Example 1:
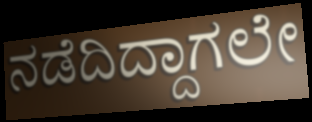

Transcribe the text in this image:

ನಡೆದಿದ್ದಾಗಲೇ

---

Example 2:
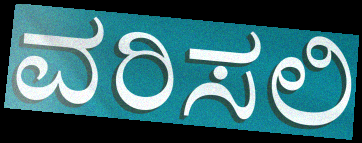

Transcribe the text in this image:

ವರಿಸಲಿ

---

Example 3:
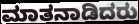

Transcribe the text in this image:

ಮಾತನಾಡಿದರು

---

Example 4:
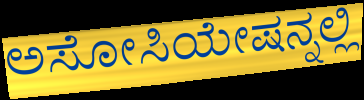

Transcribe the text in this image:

ಅಸೋಸಿಯೇಷನ್ನಲ್ಲಿ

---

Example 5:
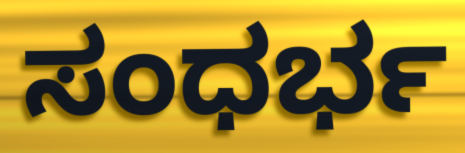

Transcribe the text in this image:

ಸಂಧರ್ಭ